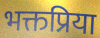
भक्तप्रिया